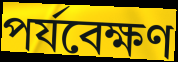
পর্যবেক্ষণ